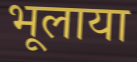
भूलाया